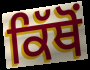
ਕਿੱਥੋੰ